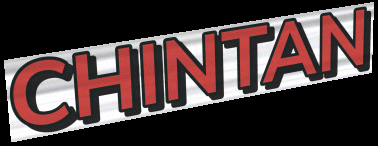
CHINTAN